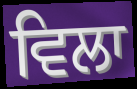
ਵਿਲਾ